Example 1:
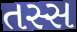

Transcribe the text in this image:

તસ્સ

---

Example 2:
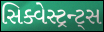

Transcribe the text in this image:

સિક્વેસ્ટ્રન્ટ્સ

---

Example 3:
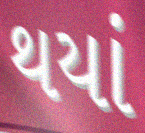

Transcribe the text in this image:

થયાં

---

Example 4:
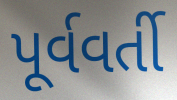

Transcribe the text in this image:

પૂર્વવર્તી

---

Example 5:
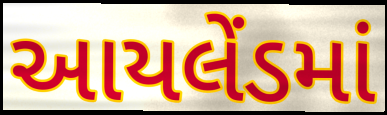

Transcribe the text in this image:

આયલેંડમાં